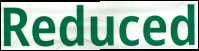
Reduced